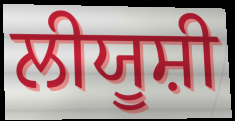
ਲੀਯੂਸ਼ੀ